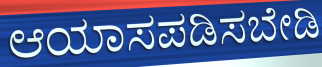
ಆಯಾಸಪಡಿಸಬೇಡಿ